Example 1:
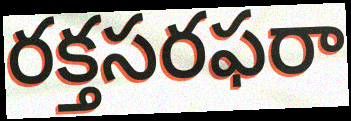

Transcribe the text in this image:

రక్తసరఫరా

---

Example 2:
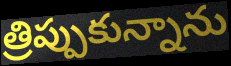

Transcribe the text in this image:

త్రిప్పుకున్నాను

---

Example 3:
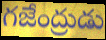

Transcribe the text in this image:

గజేంద్రుడు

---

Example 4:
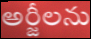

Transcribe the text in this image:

అర్జీలను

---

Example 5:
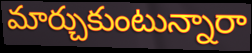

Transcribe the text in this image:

మార్చుకుంటున్నారా